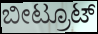
ಬೀಟ್ರೂಟ್